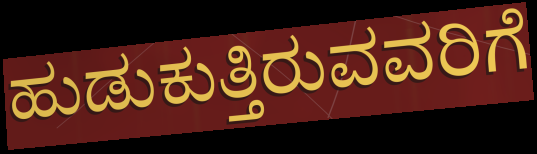
ಹುಡುಕುತ್ತಿರುವವರಿಗೆ